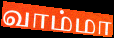
வாம்மா